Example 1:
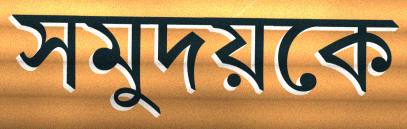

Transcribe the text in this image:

সমুদয়কে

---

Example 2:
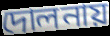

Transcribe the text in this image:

দোলনায়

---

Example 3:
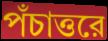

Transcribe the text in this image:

পঁচাত্তরে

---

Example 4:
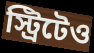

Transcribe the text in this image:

স্ট্রিটেও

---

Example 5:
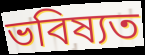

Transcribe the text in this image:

ভবিষ্যত